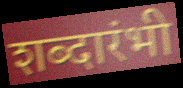
शब्दारंभी